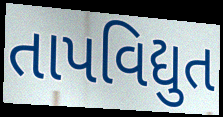
તાપવિદ્યુત